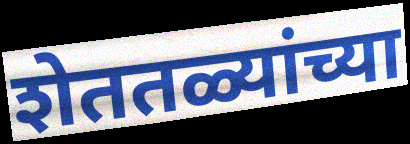
शेततळ्यांच्या